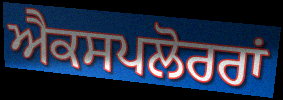
ਐਕਸਪਲੋਰਰਾਂ